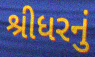
શ્રીધરનું